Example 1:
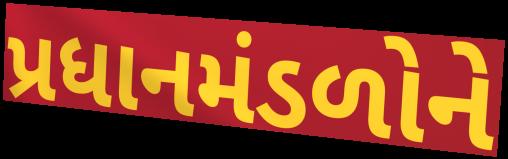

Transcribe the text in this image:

પ્રધાનમંડળોને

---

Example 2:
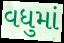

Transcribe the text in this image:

વધુમાં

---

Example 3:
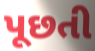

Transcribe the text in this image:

પૂછતી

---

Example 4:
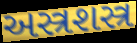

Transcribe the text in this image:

અસ્ત્રશસ્ત્ર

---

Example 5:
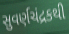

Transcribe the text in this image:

સુવર્ણચંદ્રકથી